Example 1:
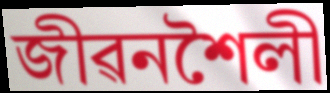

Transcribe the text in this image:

জীৱনশৈলী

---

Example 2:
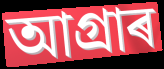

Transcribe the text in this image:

আগ্ৰাৰ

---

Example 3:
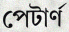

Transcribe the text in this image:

পেটাৰ্ণ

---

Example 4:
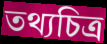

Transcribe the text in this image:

তথ্যচিত্ৰ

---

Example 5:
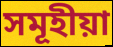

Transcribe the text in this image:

সমূহীয়া